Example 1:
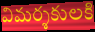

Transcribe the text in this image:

విమర్శకులకి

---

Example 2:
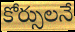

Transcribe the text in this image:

కోర్సులనే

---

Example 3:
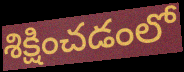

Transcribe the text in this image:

శిక్షించడంలో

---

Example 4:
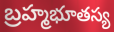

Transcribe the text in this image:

బ్రహ్మభూతస్య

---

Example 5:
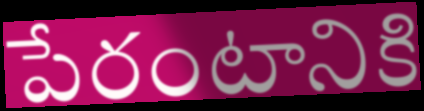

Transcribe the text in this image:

పేరంటానికి